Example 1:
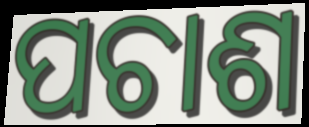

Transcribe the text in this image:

ପଚାଶ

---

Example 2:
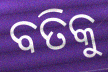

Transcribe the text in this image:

ବତିକୁ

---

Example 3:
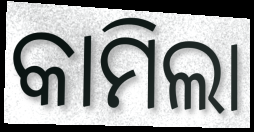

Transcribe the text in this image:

କାମିଲା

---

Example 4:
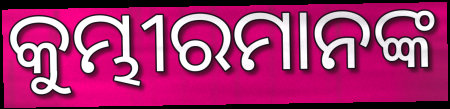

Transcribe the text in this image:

କୁମ୍ଭୀରମାନଙ୍କ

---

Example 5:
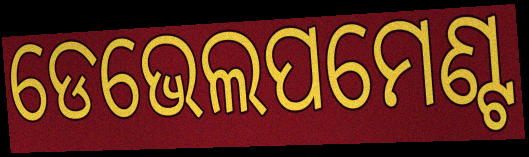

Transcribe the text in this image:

ଡେଭେଲପମେଣ୍ଟ